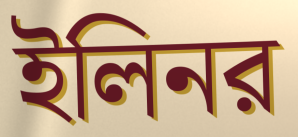
ইলিনর